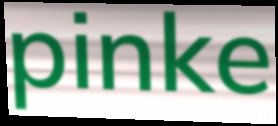
pinke